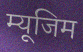
म्यूजिम